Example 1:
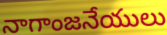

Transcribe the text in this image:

నాగాంజనేయులు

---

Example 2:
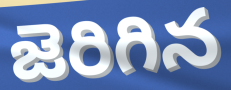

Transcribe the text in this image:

జెరిగిన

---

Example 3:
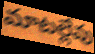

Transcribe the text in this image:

మాటల్లేవు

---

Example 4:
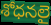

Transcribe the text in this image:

శోధనలై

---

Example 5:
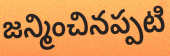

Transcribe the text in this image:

జన్మించినప్పటి